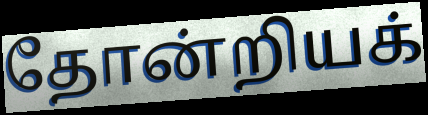
தோன்றியக்